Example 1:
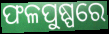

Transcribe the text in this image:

ଫଳପୁଷ୍ପରେ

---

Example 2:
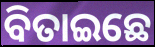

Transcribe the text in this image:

ବିତାଇଛେ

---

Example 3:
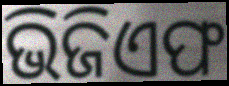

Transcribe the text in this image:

ଭିଜିଏଫ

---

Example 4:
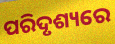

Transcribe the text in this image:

ପରିଦୃଶ୍ୟରେ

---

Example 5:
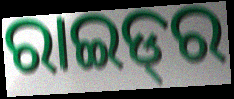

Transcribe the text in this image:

ରାଇଡ୍‌ର